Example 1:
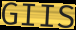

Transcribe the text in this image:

GIIS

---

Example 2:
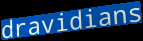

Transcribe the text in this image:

dravidians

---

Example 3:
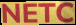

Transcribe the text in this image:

NETC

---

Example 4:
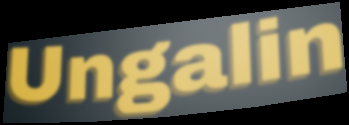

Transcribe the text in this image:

Ungalin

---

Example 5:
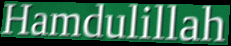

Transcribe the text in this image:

Hamdulillah